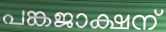
പങ്കജാക്ഷന്